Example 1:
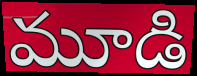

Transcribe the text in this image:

మూడి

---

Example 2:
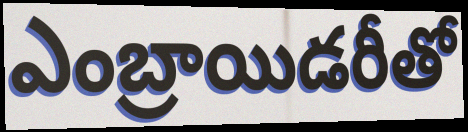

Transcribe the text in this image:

ఎంబ్రాయిడరీతో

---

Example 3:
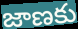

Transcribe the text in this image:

జాణకు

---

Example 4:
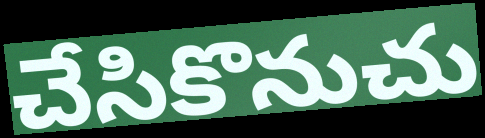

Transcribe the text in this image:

చేసికొనుచు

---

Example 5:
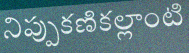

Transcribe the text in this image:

నిప్పుకణికల్లాంటి